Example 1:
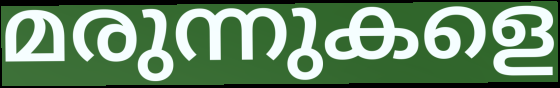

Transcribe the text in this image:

മരുന്നുകളെ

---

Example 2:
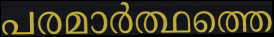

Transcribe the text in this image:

പരമാർത്ഥത്തെ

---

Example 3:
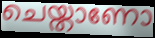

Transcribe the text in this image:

ചെയ്താണോ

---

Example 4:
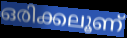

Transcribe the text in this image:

ഒരിക്കലൂണ്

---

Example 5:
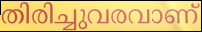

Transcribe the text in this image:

തിരിച്ചുവരവാണ്